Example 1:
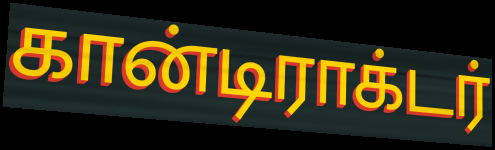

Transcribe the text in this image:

கான்டிராக்டர்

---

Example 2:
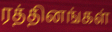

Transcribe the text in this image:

ரத்தினங்கள்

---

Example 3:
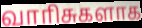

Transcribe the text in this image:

வாரிசுகளாக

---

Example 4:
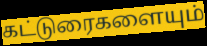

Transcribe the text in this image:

கட்டுரைகளையும்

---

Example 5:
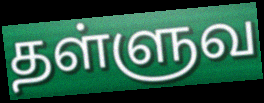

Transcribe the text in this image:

தள்ளுவ